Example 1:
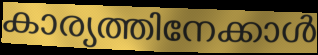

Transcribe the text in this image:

കാര്യത്തിനേക്കാൾ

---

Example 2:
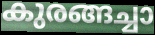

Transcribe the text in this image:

കുരങ്ങച്ചാ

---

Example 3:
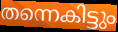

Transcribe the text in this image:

തന്നെകിട്ടും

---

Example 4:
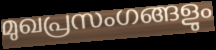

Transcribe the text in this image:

മുഖപ്രസംഗങ്ങളും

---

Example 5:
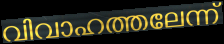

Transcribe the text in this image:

വിവാഹത്തലേന്ന്